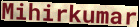
Mihirkumar